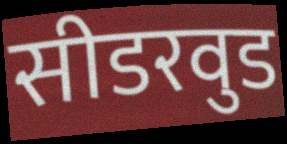
सीडरवुड